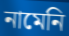
নামেনি